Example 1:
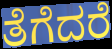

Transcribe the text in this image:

ತೆಗೆದರೆ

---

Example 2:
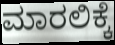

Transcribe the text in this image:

ಮಾರಲಿಕ್ಕೆ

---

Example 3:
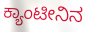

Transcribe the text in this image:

ಕ್ಯಾಂಟೀನಿನ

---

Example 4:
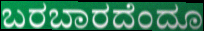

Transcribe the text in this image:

ಬರಬಾರದೆಂದೂ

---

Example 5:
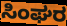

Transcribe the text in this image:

ಸಿಂಘರ